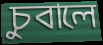
চুবালে